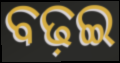
ବଢ଼ଇ